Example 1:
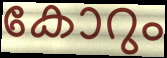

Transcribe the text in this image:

കോറും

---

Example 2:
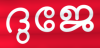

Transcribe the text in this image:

ദുജേ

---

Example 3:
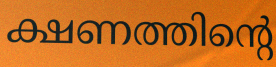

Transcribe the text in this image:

ക്ഷണത്തിന്റെ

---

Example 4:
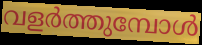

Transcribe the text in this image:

വളർത്തുമ്പോൾ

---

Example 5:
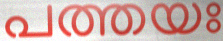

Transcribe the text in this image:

പത്തയഃ